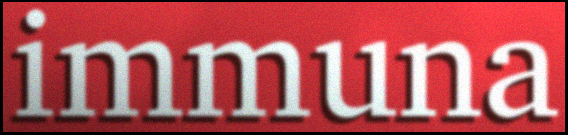
immuna